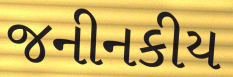
જનીનકીય